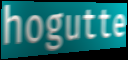
hogutte